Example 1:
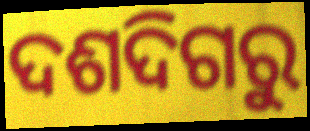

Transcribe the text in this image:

ଦଶଦିଗରୁ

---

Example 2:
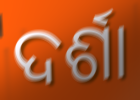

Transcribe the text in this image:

ଦର୍ଶା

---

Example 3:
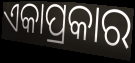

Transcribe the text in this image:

ଏକାପ୍ରକାର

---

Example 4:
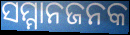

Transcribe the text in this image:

ସମ୍ମାନଜନକ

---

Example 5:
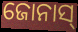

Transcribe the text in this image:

ଜୋନାସ୍